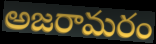
అజరామరం